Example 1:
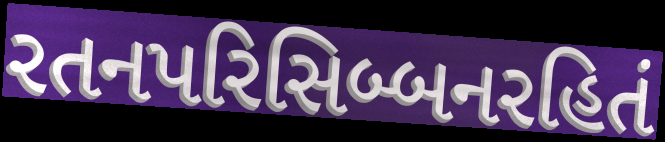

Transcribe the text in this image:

રતનપરિસિબ્બનરહિતં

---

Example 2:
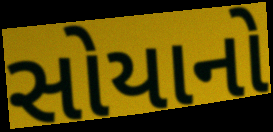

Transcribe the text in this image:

સોયાનો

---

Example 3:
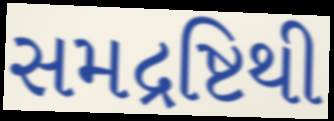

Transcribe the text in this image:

સમદ્રષ્ટિથી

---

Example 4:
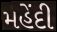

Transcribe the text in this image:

મહેંદી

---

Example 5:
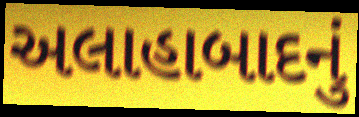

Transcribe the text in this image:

અલાહાબાદનું